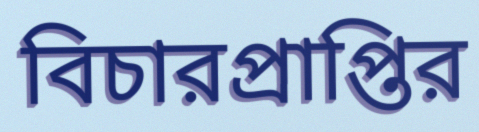
বিচারপ্রাপ্তির